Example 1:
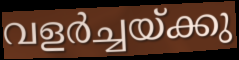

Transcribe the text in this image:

വളർച്ചയ്ക്കു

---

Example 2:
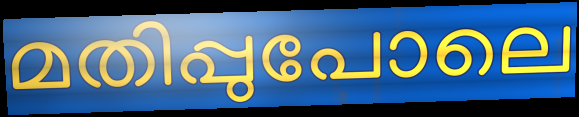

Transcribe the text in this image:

മതിപ്പുപോലെ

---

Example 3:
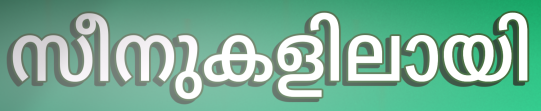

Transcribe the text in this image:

സീനുകളിലായി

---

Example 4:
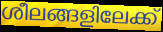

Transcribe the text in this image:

ശീലങ്ങളിലേക്ക്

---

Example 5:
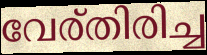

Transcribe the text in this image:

വേര്തിരിച്ച